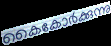
കൈകോർക്കുന്നു